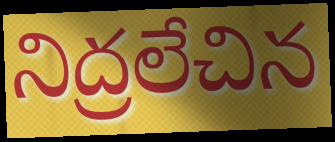
నిద్రలేచిన